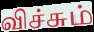
விச்சும்